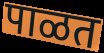
पाळत